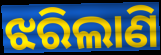
ଝରିଲାଣି